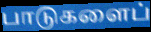
பாடுகளைப்